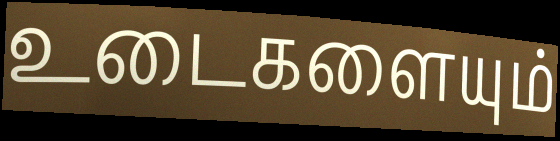
உடைகளையும்